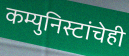
कम्युनिस्टांचेही